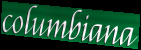
columbiana